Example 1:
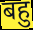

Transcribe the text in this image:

बहु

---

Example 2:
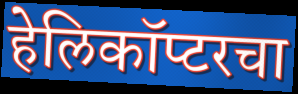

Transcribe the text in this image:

हेलिकॉप्टरचा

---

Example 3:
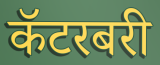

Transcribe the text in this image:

कॅटरबरी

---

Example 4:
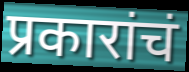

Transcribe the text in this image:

प्रकारांचं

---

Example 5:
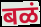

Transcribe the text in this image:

बळं